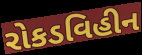
રોકડવિહીન